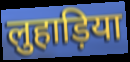
लुहाड़िया